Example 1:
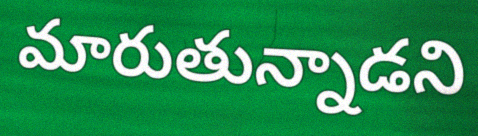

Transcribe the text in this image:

మారుతున్నాడని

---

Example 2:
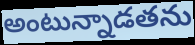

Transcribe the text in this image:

అంటున్నాడతను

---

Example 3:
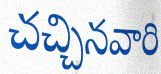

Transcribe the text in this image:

చచ్చినవారి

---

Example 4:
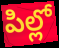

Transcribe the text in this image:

పిల్లో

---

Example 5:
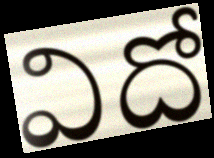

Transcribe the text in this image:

విదో